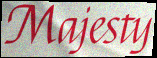
Majesty